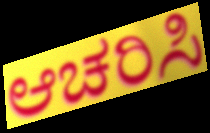
ಆಚರಿಸಿ